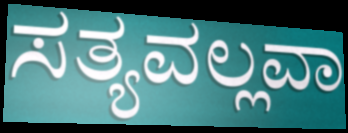
ಸತ್ಯವಲ್ಲವಾ